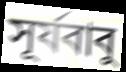
সূর্যবাবু